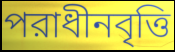
পরাধীনবৃত্তি